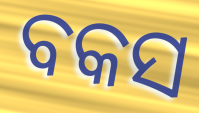
ବକସ